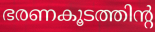
ഭരണകൂടത്തിന്റ